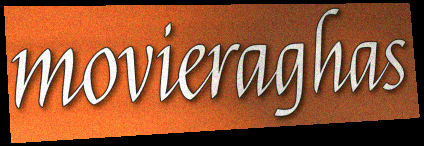
movieraghas